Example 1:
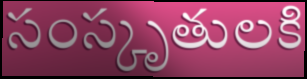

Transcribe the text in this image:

సంస్కృతులకి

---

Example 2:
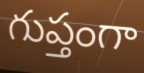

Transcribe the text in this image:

గుప్తంగా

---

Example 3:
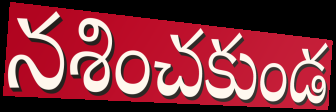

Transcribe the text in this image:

నశించకుండ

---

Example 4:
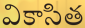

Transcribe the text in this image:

వికాసిత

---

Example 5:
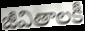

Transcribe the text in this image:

జీవితాలకీ